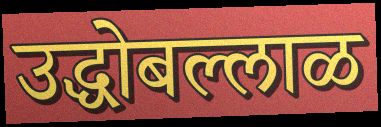
उद्धोबल्लाळ